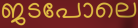
ജടപോലെ